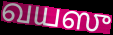
வயஸு